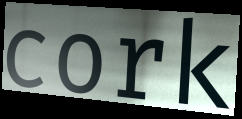
cork